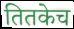
तितकेच